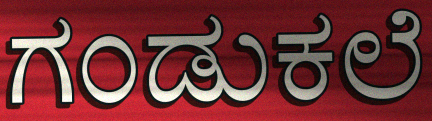
ಗಂಡುಕಲೆ